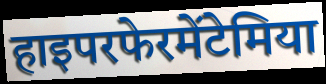
हाइपरफेरमेंटेमिया